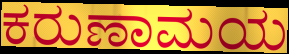
ಕರುಣಾಮಯ